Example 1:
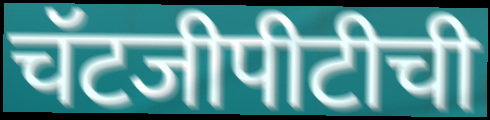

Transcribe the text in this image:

चॅटजीपीटीची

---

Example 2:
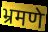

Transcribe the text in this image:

भ्रमणे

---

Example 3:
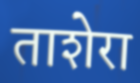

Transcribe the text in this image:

ताशेरा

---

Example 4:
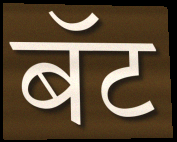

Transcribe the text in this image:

बॅट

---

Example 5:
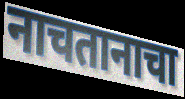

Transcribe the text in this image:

नाचतानाचा